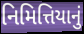
નિમિત્તિયાનું